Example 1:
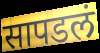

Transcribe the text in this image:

सापडलं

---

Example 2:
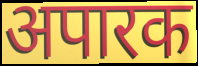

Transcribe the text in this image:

अपारक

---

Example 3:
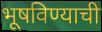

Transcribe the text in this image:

भूषविण्याची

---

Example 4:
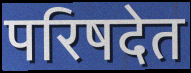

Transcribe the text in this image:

परिषदेत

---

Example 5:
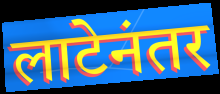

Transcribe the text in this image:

लाटेनंतर